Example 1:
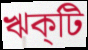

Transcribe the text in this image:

ঋক্‌টি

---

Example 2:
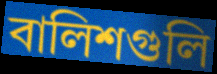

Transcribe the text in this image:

বালিশগুলি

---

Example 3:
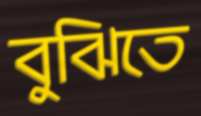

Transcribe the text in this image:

বুঝিতে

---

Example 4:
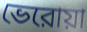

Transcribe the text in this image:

ভেরোয়া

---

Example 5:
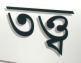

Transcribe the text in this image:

তত্ত্ব